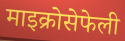
माइक्रोसेफेली